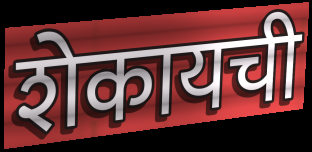
शेकायची